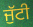
ਜੁੱਟੀ